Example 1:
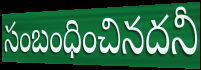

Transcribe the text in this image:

సంబంధించినదనీ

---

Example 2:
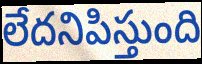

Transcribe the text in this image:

లేదనిపిస్తుంది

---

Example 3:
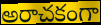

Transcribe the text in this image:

అరాచకంగా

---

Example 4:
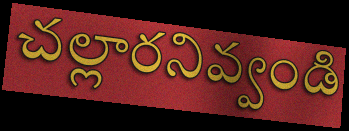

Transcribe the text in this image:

చల్లారనివ్వండి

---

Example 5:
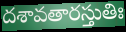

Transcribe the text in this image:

దశావతారస్తుతిః